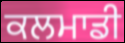
ਕਲਮਾਡੀ